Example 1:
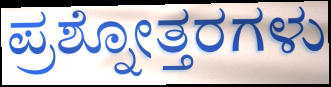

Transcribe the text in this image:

ಪ್ರಶ್ನೋತ್ತರಗಳು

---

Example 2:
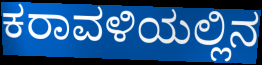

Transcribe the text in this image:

ಕರಾವಳಿಯಲ್ಲಿನ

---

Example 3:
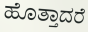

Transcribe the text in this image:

ಹೊತ್ತಾದರೆ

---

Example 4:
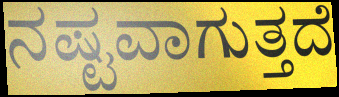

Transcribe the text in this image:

ನಷ್ಟವಾಗುತ್ತದೆ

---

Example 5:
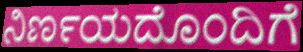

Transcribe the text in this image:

ನಿರ್ಣಯದೊಂದಿಗೆ